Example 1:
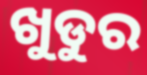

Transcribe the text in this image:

ଖୁଡୁର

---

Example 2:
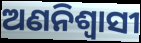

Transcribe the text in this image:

ଅଣନିଶ୍ୱାସୀ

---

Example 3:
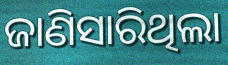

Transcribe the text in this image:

ଜାଣିସାରିଥିଲା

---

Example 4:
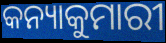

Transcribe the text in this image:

କନ୍ୟାକୁମାରୀ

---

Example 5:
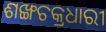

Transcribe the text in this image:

ଶଙ୍ଖଚକ୍ରଧାରୀ